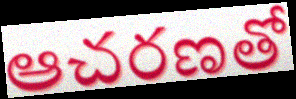
ఆచరణతో